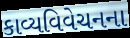
કાવ્યવિવેચનના